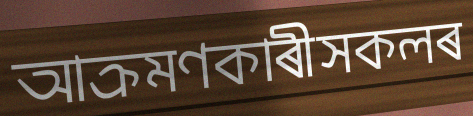
আক্ৰমণকাৰীসকলৰ